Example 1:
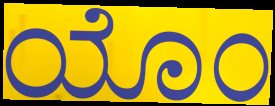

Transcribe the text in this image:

ಯೊಂ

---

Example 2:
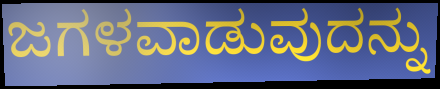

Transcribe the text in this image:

ಜಗಳವಾಡುವುದನ್ನು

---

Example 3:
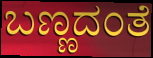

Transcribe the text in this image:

ಬಣ್ಣದಂತೆ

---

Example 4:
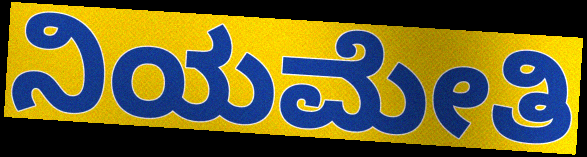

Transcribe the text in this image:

ನಿಯಮೇತಿ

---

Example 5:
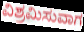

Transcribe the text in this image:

ವಿಶ್ರಮಿಸುವಾಗ